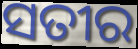
ସତୀର